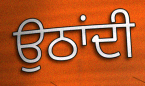
ਉਠਾਂਦੀ